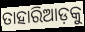
ତାହାରିଆଡ଼କୁ